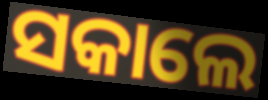
ସକାଲେ